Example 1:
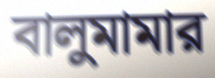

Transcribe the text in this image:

বালুমামার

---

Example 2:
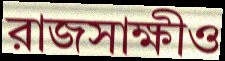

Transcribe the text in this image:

রাজসাক্ষীও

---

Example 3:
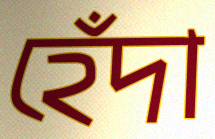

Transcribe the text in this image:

হেঁদা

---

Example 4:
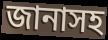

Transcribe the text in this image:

জানাসহ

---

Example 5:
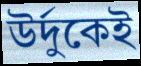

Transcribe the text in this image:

উর্দুকেই